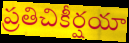
ప్రతిచికీర్షయా